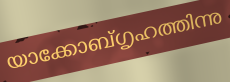
യാക്കോബ്ഗൃഹത്തിന്നു